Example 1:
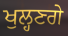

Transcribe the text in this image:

ਖੁਲ੍ਹਣਗੇ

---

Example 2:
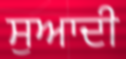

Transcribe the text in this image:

ਸੁਆਦੀ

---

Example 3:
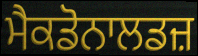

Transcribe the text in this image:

ਮੈਕਡੋਨਾਲਡਜ਼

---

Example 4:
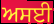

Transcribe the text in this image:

ਅਸਈ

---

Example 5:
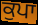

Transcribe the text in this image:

ਕੁਪਾ